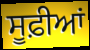
ਸੂਫ਼ੀਆਂ